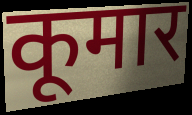
कूमार